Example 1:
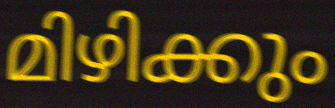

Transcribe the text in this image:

മിഴിക്കും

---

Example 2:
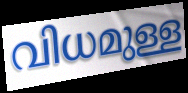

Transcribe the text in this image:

വിധമുള്ള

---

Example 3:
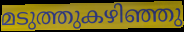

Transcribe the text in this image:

മടുത്തുകഴിഞ്ഞു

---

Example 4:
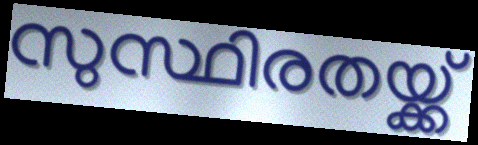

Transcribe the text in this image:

സുസ്ഥിരതയ്ക്ക്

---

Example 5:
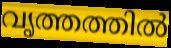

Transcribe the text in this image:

വൃത്തത്തിൽ